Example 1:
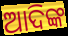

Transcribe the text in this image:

ଆଦିଙ୍କ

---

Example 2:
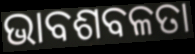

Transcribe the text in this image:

ଭାବଶବଳତା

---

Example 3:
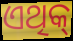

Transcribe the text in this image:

ଏଥିକ୍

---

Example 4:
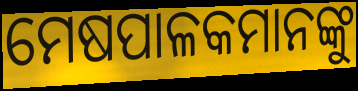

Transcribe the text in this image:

ମେଷପାଳକମାନଙ୍କୁ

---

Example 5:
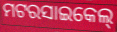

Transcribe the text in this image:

ମଟରସାଇକେଲ୍